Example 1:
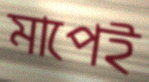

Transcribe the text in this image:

মাপেই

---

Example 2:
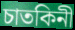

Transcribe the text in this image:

চাতকিনী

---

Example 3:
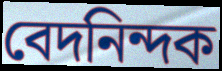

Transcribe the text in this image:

বেদনিন্দক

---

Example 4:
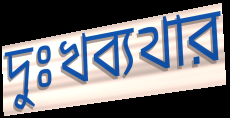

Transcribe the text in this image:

দুঃখব্যথার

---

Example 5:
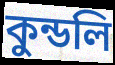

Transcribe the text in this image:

কুন্ডলি